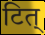
टित्